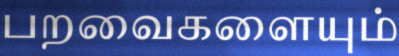
பறவைகளையும்